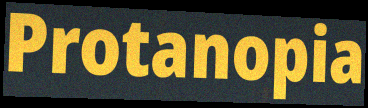
Protanopia